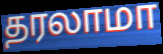
தரலாமா